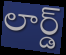
లార్డ్